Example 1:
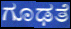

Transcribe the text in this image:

ಗೂಢತೆ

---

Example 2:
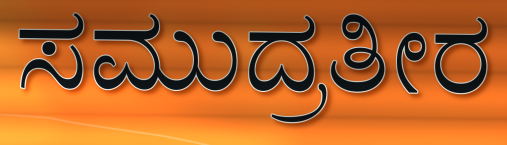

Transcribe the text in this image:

ಸಮುದ್ರತೀರ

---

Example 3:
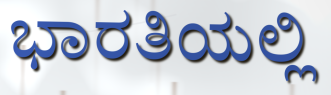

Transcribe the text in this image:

ಭಾರತಿಯಲ್ಲಿ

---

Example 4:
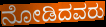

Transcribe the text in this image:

ನೋಡಿದವರು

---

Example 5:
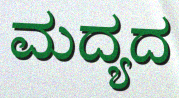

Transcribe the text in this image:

ಮದ್ಯದ